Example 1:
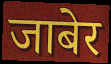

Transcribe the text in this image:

जाबेर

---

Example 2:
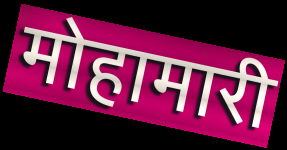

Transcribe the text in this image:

मोहामारी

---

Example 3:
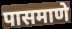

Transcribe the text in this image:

पासमाणे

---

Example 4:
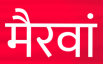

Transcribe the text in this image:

मैरवां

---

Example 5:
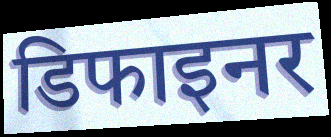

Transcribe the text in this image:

डिफाइनर